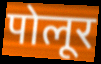
पोलूर